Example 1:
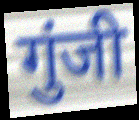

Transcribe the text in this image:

गुंजी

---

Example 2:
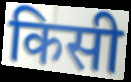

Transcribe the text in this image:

किसी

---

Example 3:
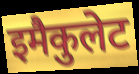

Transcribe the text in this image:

इमैकुलेट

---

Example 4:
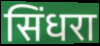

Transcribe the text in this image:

सिंधरा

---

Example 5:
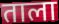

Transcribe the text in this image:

ताला